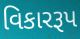
વિકારરૂપ